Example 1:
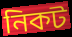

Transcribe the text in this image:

নিকট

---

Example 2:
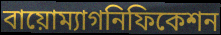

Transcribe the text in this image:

বায়োম্যাগনিফিকেশন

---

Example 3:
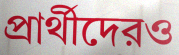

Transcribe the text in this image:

প্রার্থীদেরও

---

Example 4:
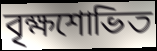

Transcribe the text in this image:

বৃক্ষশোভিত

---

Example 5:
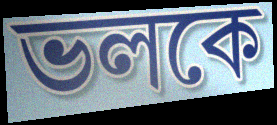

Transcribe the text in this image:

ভলকে